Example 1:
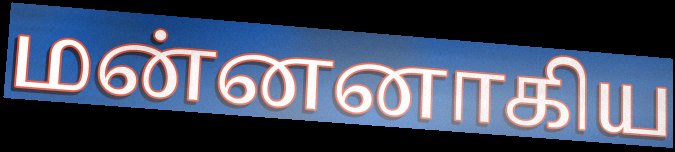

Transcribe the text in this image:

மன்னனாகிய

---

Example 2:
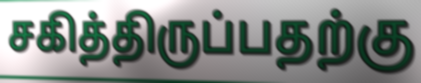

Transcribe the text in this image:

சகித்திருப்பதற்கு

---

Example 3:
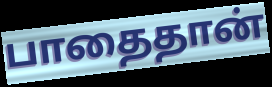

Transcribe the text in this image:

பாதைதான்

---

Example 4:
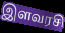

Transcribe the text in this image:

இளவரசி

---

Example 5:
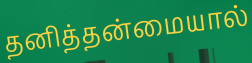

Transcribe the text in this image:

தனித்தன்மையால்